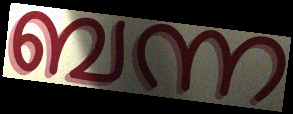
ബന്ന